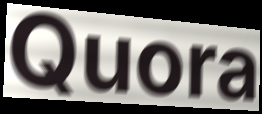
Quora